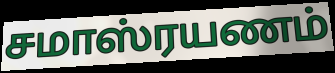
சமாஸ்ரயணம்